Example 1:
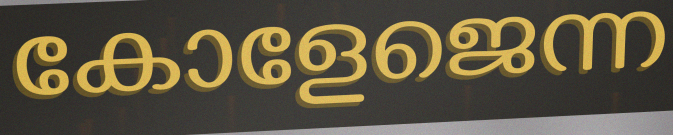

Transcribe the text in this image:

കോളേജെന്ന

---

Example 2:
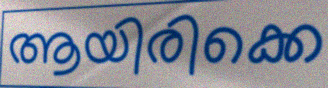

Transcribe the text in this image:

ആയിരിക്കെ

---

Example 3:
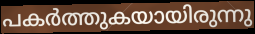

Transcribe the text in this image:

പകർത്തുകയായിരുന്നു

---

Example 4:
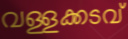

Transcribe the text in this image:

വള്ളക്കടവ്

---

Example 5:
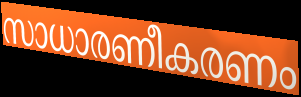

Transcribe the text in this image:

സാധാരണീകരണം